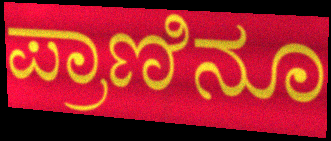
ಪ್ರಾಣಿನೂ